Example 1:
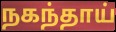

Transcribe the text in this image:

நகந்தாய்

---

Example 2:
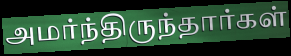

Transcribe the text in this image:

அமர்ந்திருந்தார்கள்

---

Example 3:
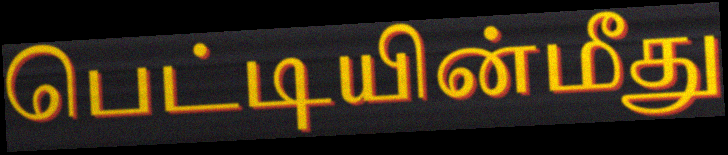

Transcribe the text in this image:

பெட்டியின்மீது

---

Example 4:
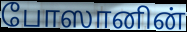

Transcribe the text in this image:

போஸானின்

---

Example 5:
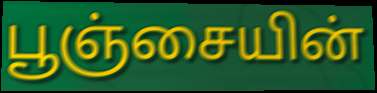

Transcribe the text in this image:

பூஞ்சையின்